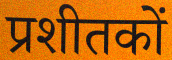
प्रशीतकों